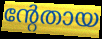
ന്റേതായ